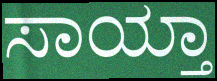
ಸಾಯ್ತಾ